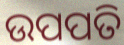
ଉପପତି